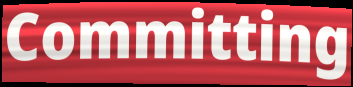
Committing